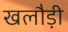
खलौड़ी